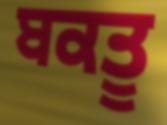
ਬਕਤੂ